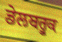
ਡੇਲਬਰੂਕ